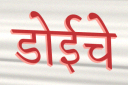
डोईचे